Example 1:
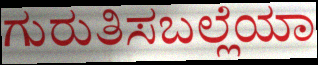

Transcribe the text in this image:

ಗುರುತಿಸಬಲ್ಲೆಯಾ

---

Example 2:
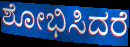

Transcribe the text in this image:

ಶೋಭಿಸಿದರೆ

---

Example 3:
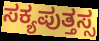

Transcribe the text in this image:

ಸಕ್ಯಪುತ್ತಸ್ಸ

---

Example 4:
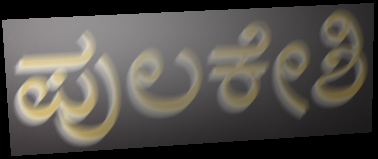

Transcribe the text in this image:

ಪುಲಕೇಶಿ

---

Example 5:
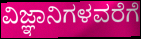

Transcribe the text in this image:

ವಿಜ್ಞಾನಿಗಳವರೆಗೆ